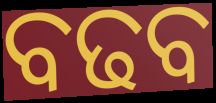
ବଢବ